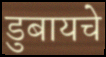
डुबायचे